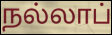
நல்லாப்